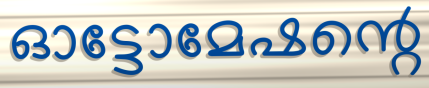
ഓട്ടോമേഷന്റെ